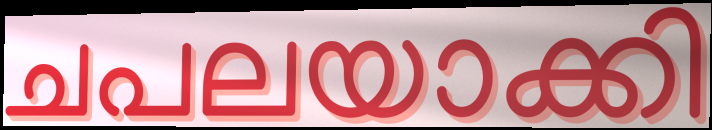
ചപലയാക്കി